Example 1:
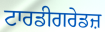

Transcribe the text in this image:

ਟਾਰਡੀਗਰੇਡਜ਼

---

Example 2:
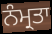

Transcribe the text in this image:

ਨੰਮ੍ਰਤਾ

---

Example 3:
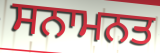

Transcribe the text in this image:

ਸਨਾਮਨਤ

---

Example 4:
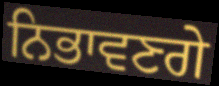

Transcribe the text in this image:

ਨਿਭਾਵਣਗੇ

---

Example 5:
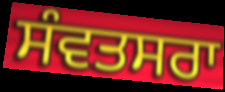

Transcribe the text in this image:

ਸੰਵਤਸਰਾ